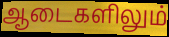
ஆடைகளிலும்